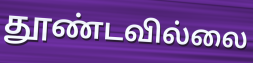
தூண்டவில்லை